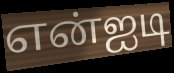
என்ஐடி